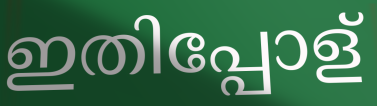
ഇതിപ്പോള്